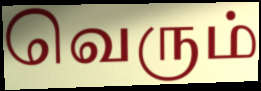
வெரும்